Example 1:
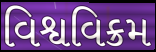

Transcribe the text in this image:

વિશ્વવિક્રમ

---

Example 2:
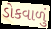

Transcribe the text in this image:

ડોકવાળું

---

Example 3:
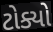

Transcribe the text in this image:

ટોક્યો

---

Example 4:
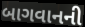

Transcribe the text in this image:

બાગવાનની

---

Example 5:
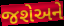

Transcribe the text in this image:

જશેઅને